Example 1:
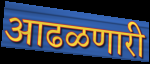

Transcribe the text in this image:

आढळणारी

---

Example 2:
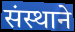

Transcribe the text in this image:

संस्थाने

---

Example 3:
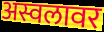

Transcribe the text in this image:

अस्वलावर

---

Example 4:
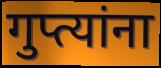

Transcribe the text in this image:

गुप्त्यांना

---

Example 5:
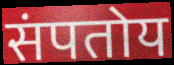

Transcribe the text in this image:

संपतोय